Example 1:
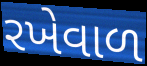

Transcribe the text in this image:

રખેવાળ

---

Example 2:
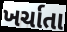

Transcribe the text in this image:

ખર્ચાતા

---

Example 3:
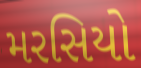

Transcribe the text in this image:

મરસિયો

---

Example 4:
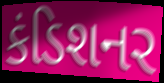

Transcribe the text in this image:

કંડિશનર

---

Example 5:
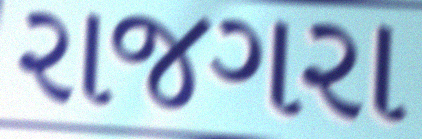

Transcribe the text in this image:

રાજગરા